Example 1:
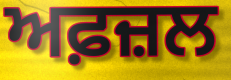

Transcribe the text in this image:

ਅਫ਼ਜ਼ਲ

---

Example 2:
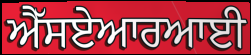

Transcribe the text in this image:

ਐੱਸਏਆਰਆਈ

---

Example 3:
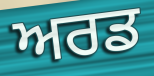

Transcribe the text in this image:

ਅਰਡ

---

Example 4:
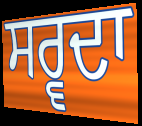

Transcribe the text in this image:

ਸਰ੍ਵਦਾ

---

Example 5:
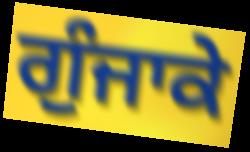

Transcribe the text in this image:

ਗੁੰਜਾਕੇ